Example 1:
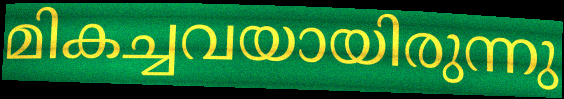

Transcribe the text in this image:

മികച്ചവയായിരുന്നു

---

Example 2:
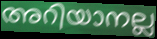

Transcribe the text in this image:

അറിയാനല്ല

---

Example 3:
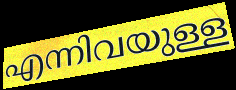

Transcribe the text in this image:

എന്നിവയുള്ള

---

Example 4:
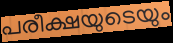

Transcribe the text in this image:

പരീക്ഷയുടെയും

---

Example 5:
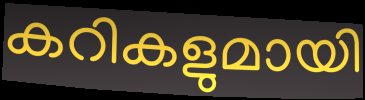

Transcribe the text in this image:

കറികളുമായി